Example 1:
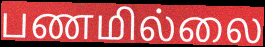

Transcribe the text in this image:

பணமில்லை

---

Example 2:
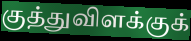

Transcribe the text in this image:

குத்துவிளக்குக்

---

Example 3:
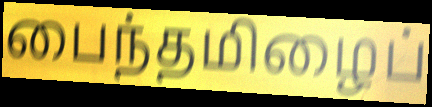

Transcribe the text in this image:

பைந்தமிழைப்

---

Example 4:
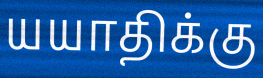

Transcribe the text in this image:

யயாதிக்கு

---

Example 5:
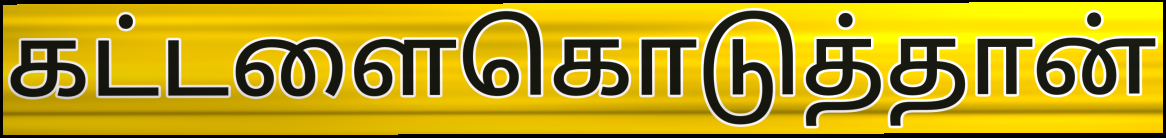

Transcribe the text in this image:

கட்டளைகொடுத்தான்